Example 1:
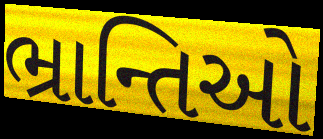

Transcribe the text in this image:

ભ્રાન્તિઓ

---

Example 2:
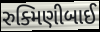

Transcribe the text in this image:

રુક્મિણીબાઈ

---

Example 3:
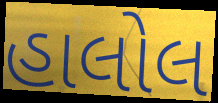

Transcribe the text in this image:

હાલોલ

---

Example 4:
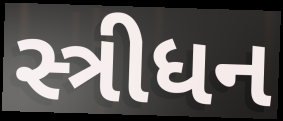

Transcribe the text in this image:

સ્ત્રીધન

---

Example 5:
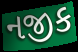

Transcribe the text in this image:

નજીક